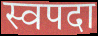
स्वपदा